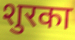
शुरका